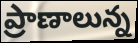
ప్రాణాలున్న